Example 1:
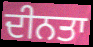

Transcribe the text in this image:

ਦੀਨਤਾ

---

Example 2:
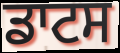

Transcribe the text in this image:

ਡਾਟਸ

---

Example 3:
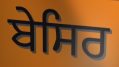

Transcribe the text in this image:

ਬੇਸਿਰ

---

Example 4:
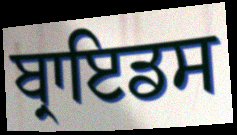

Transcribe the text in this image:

ਬ੍ਰਾਇਡਸ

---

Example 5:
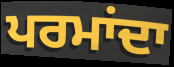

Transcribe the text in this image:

ਪਰਮਾਂਦਾ